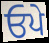
ਓਪੇ